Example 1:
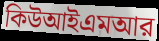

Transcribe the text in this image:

কিউআইএমআর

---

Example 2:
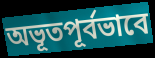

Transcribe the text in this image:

অভূতপূর্বভাবে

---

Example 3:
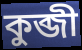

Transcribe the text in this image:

কুব্জী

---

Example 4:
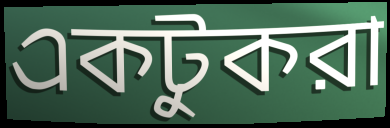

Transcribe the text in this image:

একটুকরা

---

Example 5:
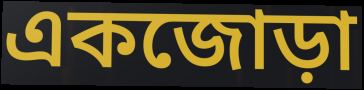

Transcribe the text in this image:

একজোড়া